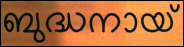
ബുദ്ധനായ്